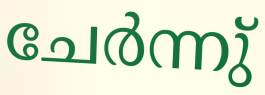
ചേർന്നു്